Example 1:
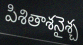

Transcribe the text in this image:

పిశితాశనైశ్చ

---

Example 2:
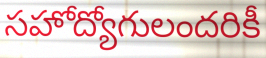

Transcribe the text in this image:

సహోద్యోగులందరికీ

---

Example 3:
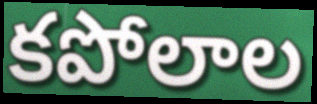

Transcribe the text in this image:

కపోలాల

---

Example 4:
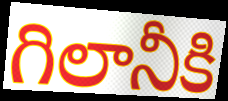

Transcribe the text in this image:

గిలానీకి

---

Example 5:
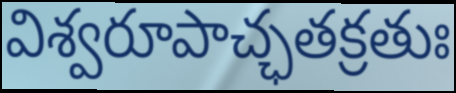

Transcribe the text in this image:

విశ్వరూపాచ్ఛతక్రతుః